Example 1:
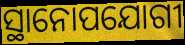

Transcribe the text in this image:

ସ୍ଥାନୋପଯୋଗୀ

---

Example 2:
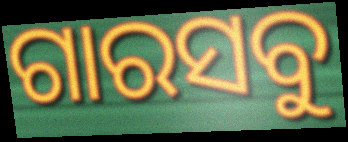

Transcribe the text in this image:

ଗାରସବୁ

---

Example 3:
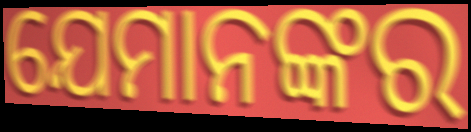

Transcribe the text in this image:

ଯେମାନଙ୍କର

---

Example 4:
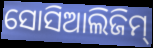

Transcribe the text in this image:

ସୋସିଆଲିଜିମ୍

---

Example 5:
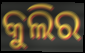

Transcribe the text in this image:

କୁଲିର